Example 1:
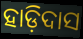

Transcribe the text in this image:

ହାଡ଼ିଦାସ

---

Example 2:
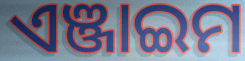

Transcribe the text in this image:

ଏଞ୍ଜାଇମ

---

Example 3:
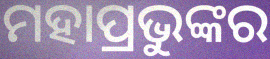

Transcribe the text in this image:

ମହାପ୍ରଭୁଙ୍କର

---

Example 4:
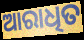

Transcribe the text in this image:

ଆରାଧିତ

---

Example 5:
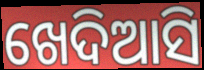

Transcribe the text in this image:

ଖେଦିଆସି